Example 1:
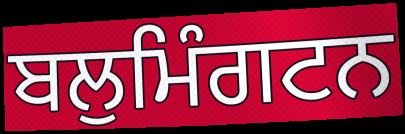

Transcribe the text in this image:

ਬਲੁਮਿੰਗਟਨ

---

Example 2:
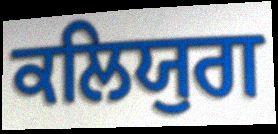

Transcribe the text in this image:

ਕਲਿਯੁਗ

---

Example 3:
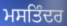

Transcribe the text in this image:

ਮਸਤਿੰਦਰ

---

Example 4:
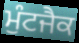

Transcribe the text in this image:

ਮੁੰਟਜੈਕ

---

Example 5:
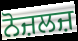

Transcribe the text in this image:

ਨੋਜ਼ਲਜ਼